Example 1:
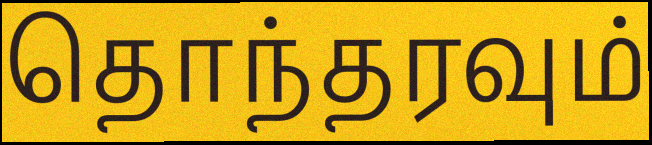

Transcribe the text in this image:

தொந்தரவும்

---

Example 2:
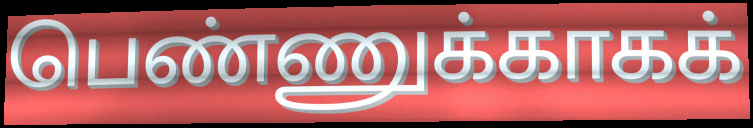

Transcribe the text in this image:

பெண்ணுக்காகக்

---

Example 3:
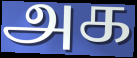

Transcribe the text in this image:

அக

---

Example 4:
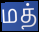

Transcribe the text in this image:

மத்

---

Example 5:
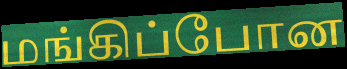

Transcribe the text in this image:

மங்கிப்போன